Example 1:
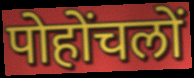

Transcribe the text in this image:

पोहोंचलों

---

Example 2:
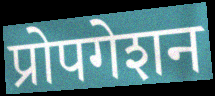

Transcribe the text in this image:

प्रोपगेशन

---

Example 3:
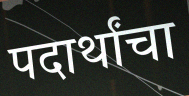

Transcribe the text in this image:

पदार्थांचा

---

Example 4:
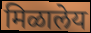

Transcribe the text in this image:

मिळालेय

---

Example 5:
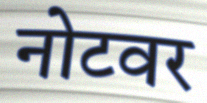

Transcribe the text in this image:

नोटवर